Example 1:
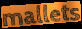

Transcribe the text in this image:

mallets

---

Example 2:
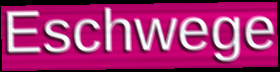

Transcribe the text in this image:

Eschwege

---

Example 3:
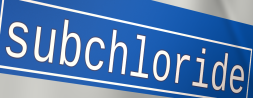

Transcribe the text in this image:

subchloride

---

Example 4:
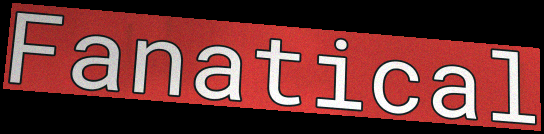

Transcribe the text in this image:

Fanatical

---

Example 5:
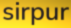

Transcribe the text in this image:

sirpur